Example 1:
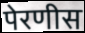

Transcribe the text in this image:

पेरणीस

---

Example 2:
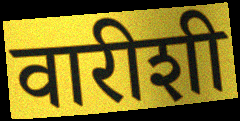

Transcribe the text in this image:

वारीशी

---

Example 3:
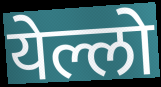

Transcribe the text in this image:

येल्लो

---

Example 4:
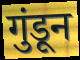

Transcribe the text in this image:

गुंडून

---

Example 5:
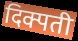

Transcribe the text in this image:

दिक्पती